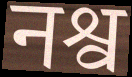
नश्व